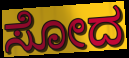
ಸೋದ